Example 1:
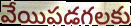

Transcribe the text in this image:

వేయిపడగలకు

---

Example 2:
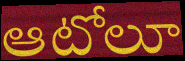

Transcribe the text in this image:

ఆటోలూ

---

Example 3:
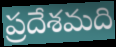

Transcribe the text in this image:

ప్రదేశమది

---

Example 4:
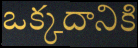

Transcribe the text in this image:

ఒక్కదానికి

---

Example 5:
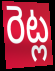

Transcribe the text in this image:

రెట్ల